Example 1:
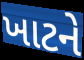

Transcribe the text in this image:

ખાટને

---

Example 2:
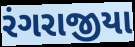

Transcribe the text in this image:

રંગરાજીયા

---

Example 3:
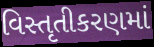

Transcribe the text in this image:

વિસ્તૃતીકરણમાં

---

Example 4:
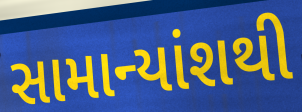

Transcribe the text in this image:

સામાન્યાંશથી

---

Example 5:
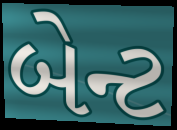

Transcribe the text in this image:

બેન્ટ